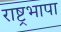
राष्ट्रभापा